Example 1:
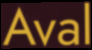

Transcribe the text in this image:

Aval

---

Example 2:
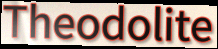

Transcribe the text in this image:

Theodolite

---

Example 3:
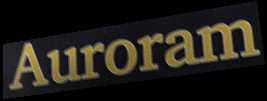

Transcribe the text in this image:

Auroram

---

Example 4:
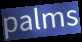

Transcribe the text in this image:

palms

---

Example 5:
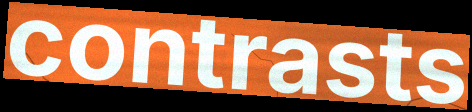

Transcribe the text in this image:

contrasts